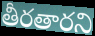
తీరతారని